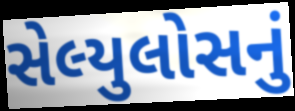
સેલ્યુલોસનું